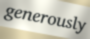
generously